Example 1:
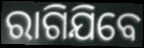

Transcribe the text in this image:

ରାଗିଯିବେ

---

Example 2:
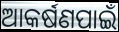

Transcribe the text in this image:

ଆକର୍ଷଣପାଇଁ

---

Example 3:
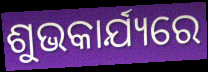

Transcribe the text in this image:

ଶୁଭକାର୍ଯ୍ୟରେ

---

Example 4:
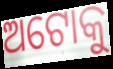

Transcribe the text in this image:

ଅଟୋକୁ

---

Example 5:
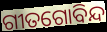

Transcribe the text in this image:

ଗୀତଗୋବିନ୍ଦ